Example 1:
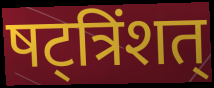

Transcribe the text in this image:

षट्त्रिंशत्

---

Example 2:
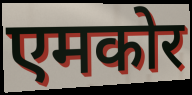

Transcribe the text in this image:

एमकोर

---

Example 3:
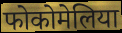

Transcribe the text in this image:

फोकोमेलिया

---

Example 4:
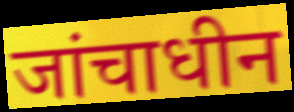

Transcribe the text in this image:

जांचाधीन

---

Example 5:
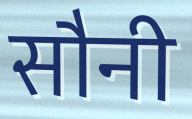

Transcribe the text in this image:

सौनी